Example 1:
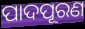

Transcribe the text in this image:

ପାଦପୂରଣ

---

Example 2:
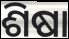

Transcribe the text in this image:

ଶିଷା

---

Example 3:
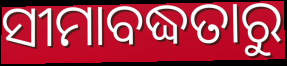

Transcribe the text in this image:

ସୀମାବଦ୍ଧତାରୁ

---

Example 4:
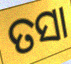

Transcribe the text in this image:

ତସା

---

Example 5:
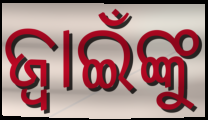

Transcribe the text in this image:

ଜ୍ବାଇଁଙ୍କୁ